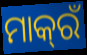
ମାକ୍‌ରଁ